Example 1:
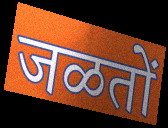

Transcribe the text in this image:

जळतों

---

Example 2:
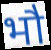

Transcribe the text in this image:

भौ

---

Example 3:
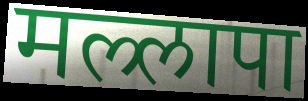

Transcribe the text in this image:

मल्लापा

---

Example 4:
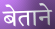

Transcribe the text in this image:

बेताने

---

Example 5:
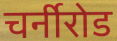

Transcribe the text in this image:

चर्नीरोड